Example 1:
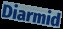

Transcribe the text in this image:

Diarmid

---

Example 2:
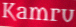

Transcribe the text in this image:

Kamru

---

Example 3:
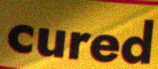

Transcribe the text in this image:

cured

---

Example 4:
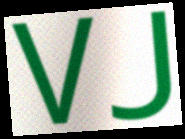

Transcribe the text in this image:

VJ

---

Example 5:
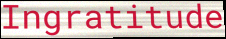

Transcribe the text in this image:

Ingratitude